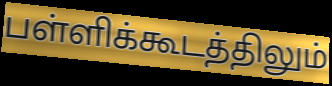
பள்ளிக்கூடத்திலும்